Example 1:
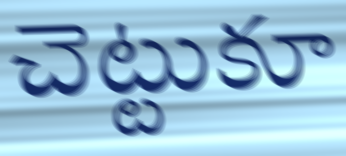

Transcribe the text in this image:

చెట్టుకూ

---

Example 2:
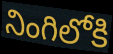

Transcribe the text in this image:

నింగిలోకి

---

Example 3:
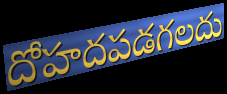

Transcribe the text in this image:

దోహదపడగలదు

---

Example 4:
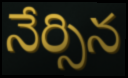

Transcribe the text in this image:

నేర్సిన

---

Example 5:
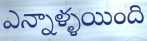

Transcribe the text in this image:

ఎన్నాళ్ళయింది